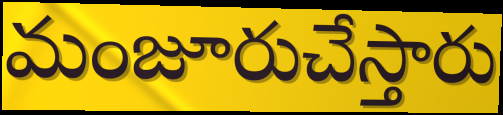
మంజూరుచేస్తారు